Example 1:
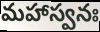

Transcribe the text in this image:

మహాస్వనః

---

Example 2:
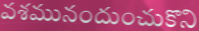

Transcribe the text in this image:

వశమునందుంచుకొని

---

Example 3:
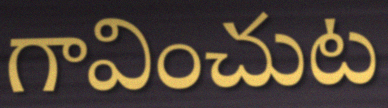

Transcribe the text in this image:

గావించుట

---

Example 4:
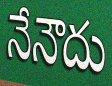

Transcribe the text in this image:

నేనౌదు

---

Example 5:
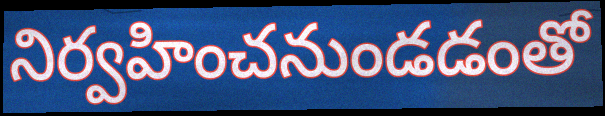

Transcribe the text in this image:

నిర్వహించనుండడంతో